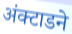
अंक्टाडने